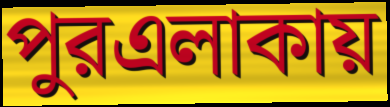
পুরএলাকায়